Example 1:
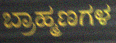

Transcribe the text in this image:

ಬ್ರಾಹ್ಮಣಗಳ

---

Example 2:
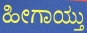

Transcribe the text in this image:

ಹೀಗಾಯ್ತು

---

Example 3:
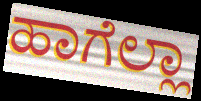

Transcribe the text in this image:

ಹಾಗೆಲ್ಲಾ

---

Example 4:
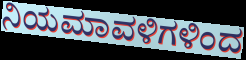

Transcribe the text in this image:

ನಿಯಮಾವಳಿಗಳಿಂದ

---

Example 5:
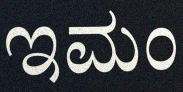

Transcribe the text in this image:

ಇಮಂ